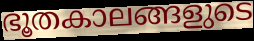
ഭൂതകാലങ്ങളുടെ